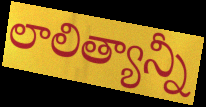
లాలిత్యాన్నీ